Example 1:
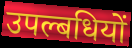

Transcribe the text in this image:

उपल्बधियों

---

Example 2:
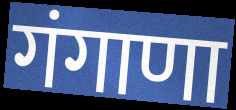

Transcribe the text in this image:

गंगाणा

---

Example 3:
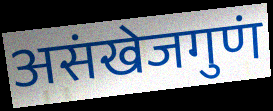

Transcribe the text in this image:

असंखेजगुणं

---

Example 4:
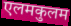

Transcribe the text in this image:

एलमकुलम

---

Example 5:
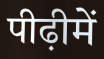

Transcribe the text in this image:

पीढ़ीमें